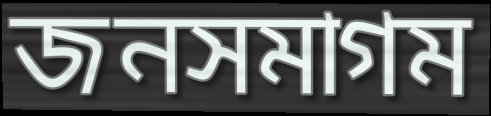
জনসমাগম